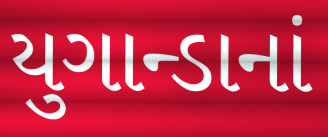
યુગાન્ડાનાં